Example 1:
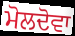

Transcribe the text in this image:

ਮੋਲਦੋਵਾ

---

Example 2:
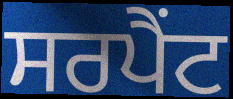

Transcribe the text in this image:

ਸਰਪੈਂਟ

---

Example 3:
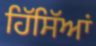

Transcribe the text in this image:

ਹਿੱਸਿੱਆਂ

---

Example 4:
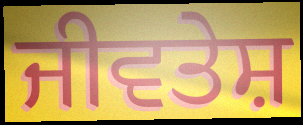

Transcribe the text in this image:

ਜੀਵਤੇਸ਼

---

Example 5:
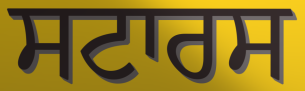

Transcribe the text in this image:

ਸਟਾਰਸ